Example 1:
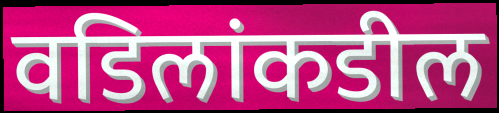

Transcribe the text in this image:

वडिलांकडील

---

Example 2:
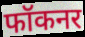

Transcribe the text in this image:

फॉकनर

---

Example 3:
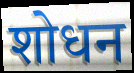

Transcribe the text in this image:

शोधन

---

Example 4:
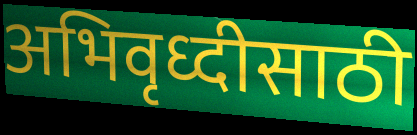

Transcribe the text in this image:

अभिवृध्दीसाठी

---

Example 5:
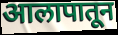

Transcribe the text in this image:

आलापातून